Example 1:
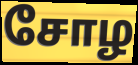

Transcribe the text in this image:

சோழ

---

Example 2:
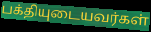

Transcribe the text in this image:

பக்தியுடையவர்கள்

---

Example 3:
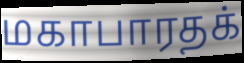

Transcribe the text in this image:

மகாபாரதக்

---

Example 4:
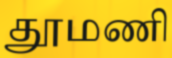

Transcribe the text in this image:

தூமணி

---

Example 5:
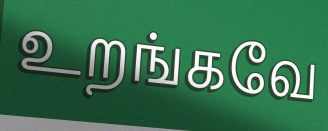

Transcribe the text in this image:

உறங்கவே